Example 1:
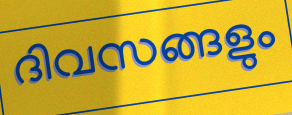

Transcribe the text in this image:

ദിവസങ്ങളും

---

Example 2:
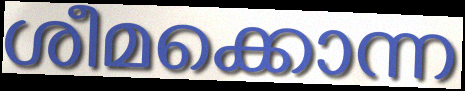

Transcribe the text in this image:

ശീമക്കൊന്ന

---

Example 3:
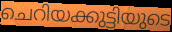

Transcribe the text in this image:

ചെറിയക്കുട്ടിയുടെ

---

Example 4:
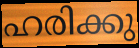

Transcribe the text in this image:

ഹരിക്കു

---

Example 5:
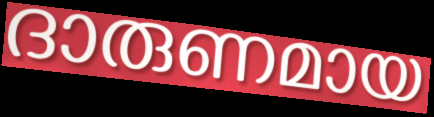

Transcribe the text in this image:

ദാരുണമായ